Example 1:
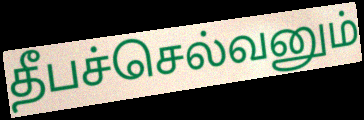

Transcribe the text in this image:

தீபச்செல்வனும்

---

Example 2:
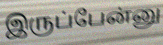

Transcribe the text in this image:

இருப்பேன்னு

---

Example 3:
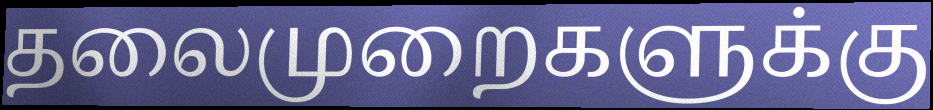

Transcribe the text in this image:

தலைமுறைகளுக்கு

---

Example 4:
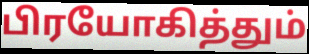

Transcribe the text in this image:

பிரயோகித்தும்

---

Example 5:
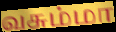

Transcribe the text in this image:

வசும்மா